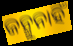
ଜନ୍ମୁନାହିଁ